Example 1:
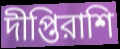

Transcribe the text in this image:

দীপ্তিরাশি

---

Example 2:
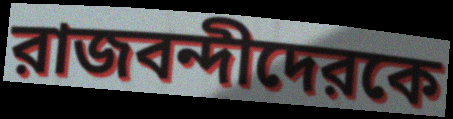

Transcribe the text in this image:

রাজবন্দীদেরকে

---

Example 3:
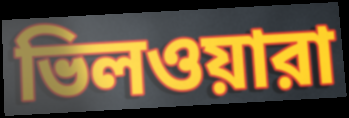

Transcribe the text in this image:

ভিলওয়ারা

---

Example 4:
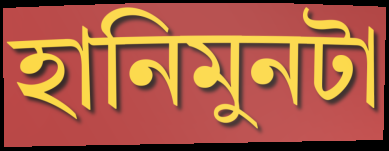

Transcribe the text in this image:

হানিমুনটা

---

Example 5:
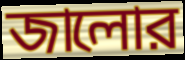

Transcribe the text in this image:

জালোর